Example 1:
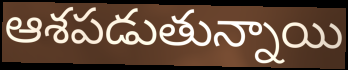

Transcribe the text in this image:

ఆశపడుతున్నాయి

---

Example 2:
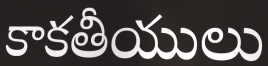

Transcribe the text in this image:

కాకతీయులు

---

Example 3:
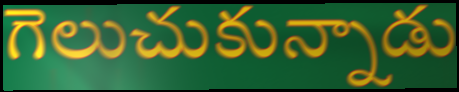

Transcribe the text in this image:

గెలుచుకున్నాడు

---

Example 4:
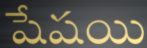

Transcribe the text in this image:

షేషయి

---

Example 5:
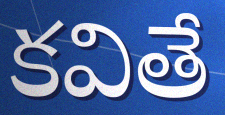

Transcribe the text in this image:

కవితే